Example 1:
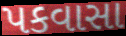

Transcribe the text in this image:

પકવાસા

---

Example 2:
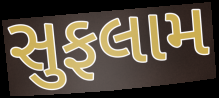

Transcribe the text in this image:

સુફલામ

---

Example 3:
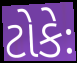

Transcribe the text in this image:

ટોકેઃ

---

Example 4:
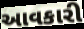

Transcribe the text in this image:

આવકારી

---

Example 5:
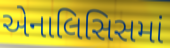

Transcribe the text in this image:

એનાલિસિસમાં